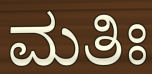
ಮತಿಃ